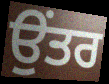
ਉਂਤਰ